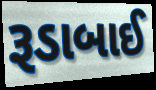
રૂડાબાઈ